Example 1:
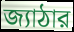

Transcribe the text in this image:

জ্যাঠার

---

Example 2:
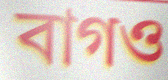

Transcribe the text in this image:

বাগও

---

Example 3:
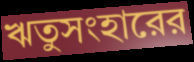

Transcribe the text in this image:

ঋতুসংহারের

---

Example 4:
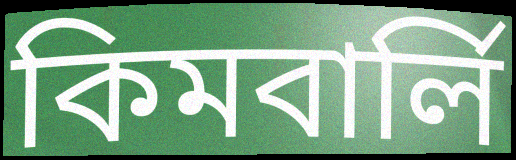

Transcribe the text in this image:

কিমবার্লি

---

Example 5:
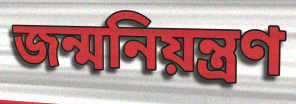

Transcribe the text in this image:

জন্মনিয়ন্ত্রণ